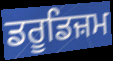
ਡਰੂਡਿਜ਼ਮ